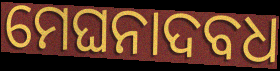
ମେଘନାଦବଧ